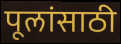
पूलांसाठी